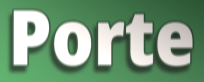
Porte